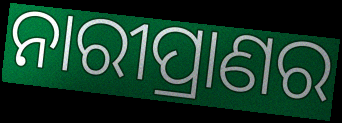
ନାରୀପ୍ରାଣର